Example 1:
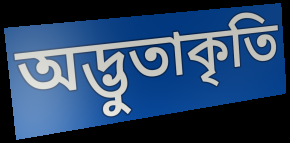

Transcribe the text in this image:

অদ্ভুতাকৃতি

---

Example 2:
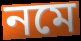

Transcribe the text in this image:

নমে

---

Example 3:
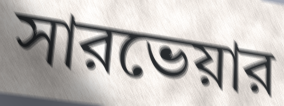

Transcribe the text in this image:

সারভেয়ার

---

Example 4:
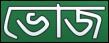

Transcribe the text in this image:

ভোজ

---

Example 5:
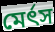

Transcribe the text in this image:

মের্ৎস